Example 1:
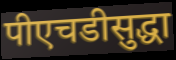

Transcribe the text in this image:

पीएचडीसुद्धा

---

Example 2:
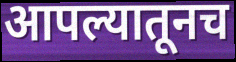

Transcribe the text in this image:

आपल्यातूनच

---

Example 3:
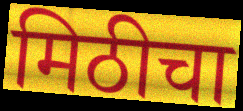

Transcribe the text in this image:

मिठीचा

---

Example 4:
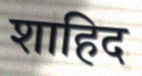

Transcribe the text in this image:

शाहिद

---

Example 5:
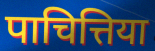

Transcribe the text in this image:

पाचित्तिया